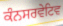
ਕੰਨਸਰਵੇਟਿਵ